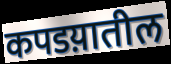
कपडय़ातील